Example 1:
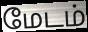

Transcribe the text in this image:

மேடம்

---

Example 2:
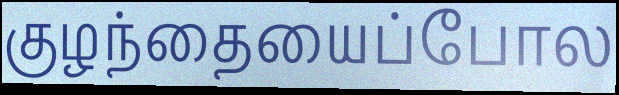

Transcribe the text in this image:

குழந்தையைப்போல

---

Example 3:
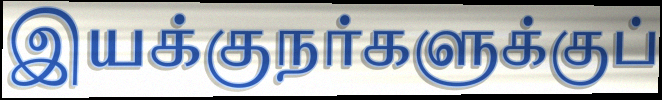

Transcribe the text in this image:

இயக்குநர்களுக்குப்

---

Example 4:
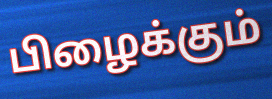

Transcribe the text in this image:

பிழைக்கும்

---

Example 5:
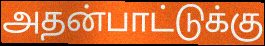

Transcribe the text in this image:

அதன்பாட்டுக்கு